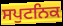
ਸਪੁਟਨਿਕ